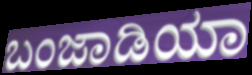
ಬಂಜಾಡಿಯಾ